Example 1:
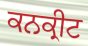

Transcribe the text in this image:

ਕਨਕ੍ਰੀਟ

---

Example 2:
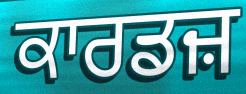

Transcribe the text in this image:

ਕਾਰਡਜ਼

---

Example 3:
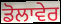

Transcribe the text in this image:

ਡੋਲਾਵੇਰ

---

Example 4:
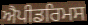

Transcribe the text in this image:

ਐਪੀਡਰਿਮਸ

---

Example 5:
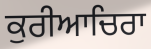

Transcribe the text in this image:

ਕੁਰੀਆਚਿਰਾ